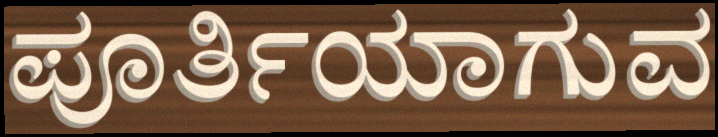
ಪೂರ್ತಿಯಾಗುವ